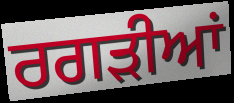
ਰਗੜੀਆਂ